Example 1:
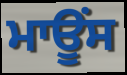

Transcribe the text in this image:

ਮਾਊਂਸ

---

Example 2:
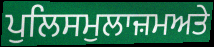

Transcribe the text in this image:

ਪੁਲਿਸਮੁਲਾਜ਼ਮਅਤੇ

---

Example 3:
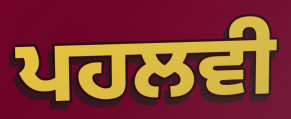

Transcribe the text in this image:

ਪਹਲਵੀ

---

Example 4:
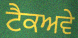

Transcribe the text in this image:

ਟੈਕਅਵੇ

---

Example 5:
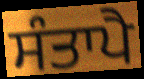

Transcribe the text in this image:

ਸੰਤਾਪੈ